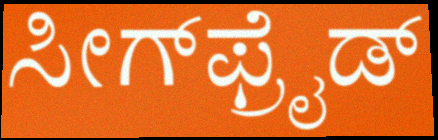
ಸೀಗ್‌ಫ್ರೈಡ್